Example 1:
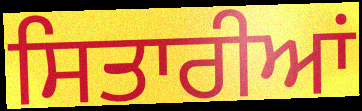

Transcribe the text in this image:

ਸਿਤਾਰੀਆਂ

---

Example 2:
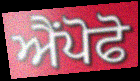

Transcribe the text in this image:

ਐਂਪੋਫੋ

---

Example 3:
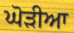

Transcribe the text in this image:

ਘੋੜੀਆ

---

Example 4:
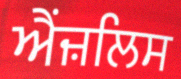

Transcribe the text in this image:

ਐਂਜ਼ਲਿਸ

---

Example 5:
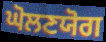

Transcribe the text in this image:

ਘੋਲਣਯੋਗ